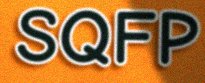
SQFP